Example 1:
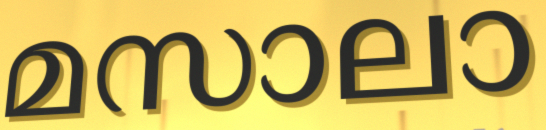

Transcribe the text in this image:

മസാലാ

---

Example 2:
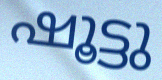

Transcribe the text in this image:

ഷൂട്ടു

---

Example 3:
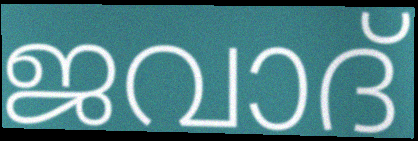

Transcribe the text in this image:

ജവാദ്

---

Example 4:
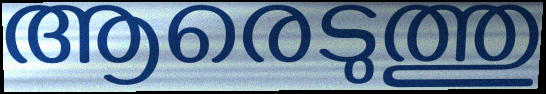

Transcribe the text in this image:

ആരെടുത്തു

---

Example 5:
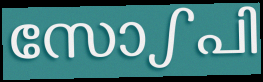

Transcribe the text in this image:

സോഽപി